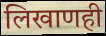
लिखाणही